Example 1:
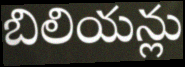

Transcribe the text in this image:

బిలియన్లు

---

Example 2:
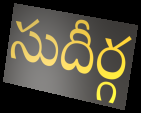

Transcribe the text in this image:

సుదీర్గ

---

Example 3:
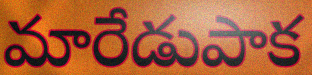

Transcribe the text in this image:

మారేడుపాక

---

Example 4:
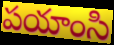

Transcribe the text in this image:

పయాంసి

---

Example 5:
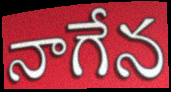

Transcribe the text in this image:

నాగేన